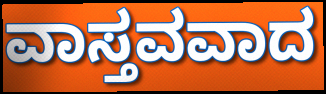
ವಾಸ್ತವವಾದ